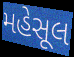
મહેસૂલ